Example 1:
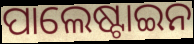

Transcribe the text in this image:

ପାଲେଷ୍ଟାଇନ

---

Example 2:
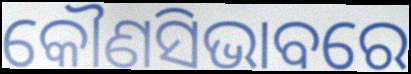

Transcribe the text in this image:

କୌଣସିଭାବରେ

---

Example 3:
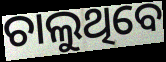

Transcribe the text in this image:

ଚାଲୁଥିବେ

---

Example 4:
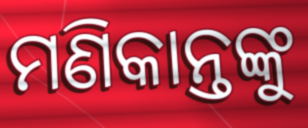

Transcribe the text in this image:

ମଣିକାନ୍ତଙ୍କୁ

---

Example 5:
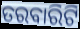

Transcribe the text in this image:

ତରବାରିଟି